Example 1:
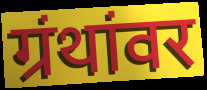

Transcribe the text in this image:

ग्रंथांवर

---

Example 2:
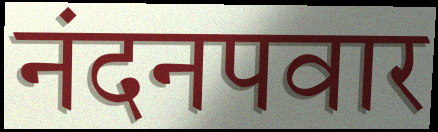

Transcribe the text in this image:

नंदनपवार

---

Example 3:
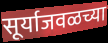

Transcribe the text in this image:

सूर्याजवळच्या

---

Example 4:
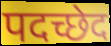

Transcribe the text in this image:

पदच्छेद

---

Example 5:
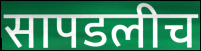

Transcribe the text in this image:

सापडलीच